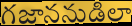
గజాననుడిలా